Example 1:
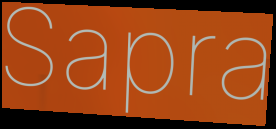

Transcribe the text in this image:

Sapra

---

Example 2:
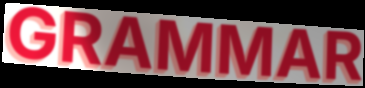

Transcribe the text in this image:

GRAMMAR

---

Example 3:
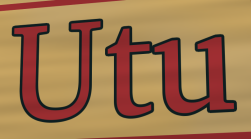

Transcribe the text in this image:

Utu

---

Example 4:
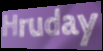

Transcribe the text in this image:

Hruday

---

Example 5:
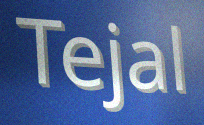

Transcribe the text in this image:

Tejal